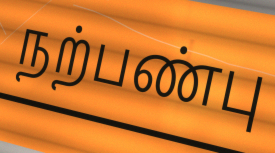
நற்பண்பு